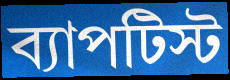
ব্যাপটিস্ট